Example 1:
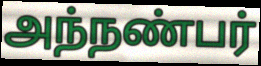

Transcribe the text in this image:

அந்நண்பர்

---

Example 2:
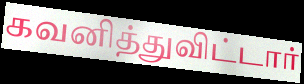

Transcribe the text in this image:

கவனித்துவிட்டார்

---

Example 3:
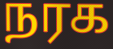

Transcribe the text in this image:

நரக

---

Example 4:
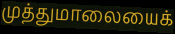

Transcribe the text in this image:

முத்துமாலையைக்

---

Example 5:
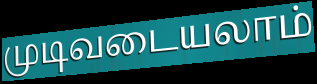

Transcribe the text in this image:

முடிவடையலாம்